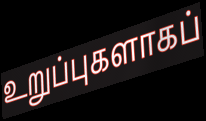
உறுப்புகளாகப்